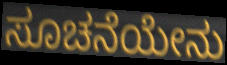
ಸೂಚನೆಯೇನು